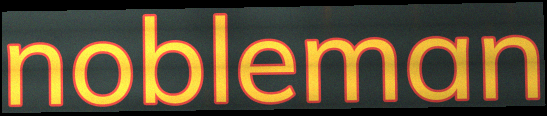
nobleman